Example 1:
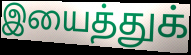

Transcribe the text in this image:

இயைத்துக்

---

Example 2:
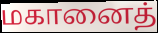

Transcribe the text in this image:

மகானைத்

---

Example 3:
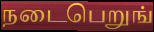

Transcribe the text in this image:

நடைபெறுங்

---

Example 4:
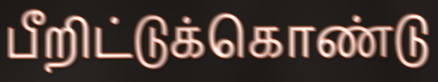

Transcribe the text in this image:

பீறிட்டுக்கொண்டு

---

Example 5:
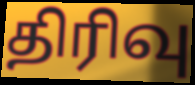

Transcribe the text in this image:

திரிவு